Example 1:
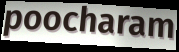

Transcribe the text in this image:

poocharam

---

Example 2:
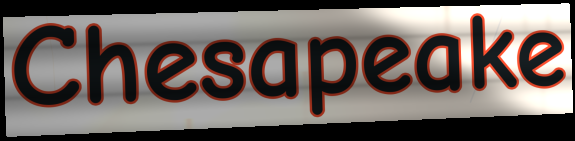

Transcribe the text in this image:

Chesapeake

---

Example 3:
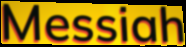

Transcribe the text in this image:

Messiah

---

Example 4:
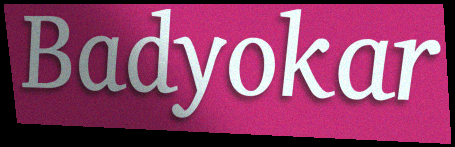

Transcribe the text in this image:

Badyokar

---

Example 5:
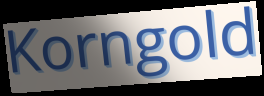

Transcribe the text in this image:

Korngold